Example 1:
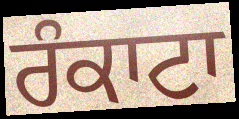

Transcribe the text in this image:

ਰੰਕਾਟਾ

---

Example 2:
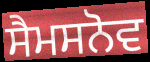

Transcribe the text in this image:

ਸੈਮਸਨੋਵ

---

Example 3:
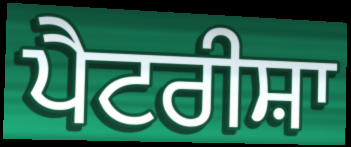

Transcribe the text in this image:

ਪੈਟਰੀਸ਼ਾ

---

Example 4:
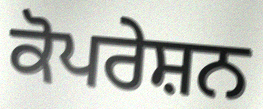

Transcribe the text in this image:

ਕੋਪਰੇਸ਼ਨ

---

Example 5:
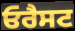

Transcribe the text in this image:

ਓਰੈਸਟ